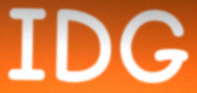
IDG